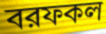
বরফকল